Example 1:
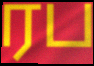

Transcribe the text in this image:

ரப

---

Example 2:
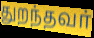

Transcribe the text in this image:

துறந்தவர்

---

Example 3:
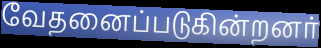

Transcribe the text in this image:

வேதனைப்படுகின்றனர்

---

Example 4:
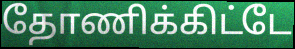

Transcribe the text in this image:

தோணிக்கிட்டே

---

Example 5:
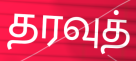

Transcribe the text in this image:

தரவுத்